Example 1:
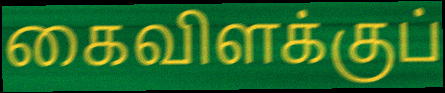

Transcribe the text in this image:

கைவிளக்குப்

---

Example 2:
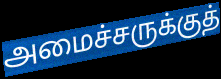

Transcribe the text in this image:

அமைச்சருக்குத்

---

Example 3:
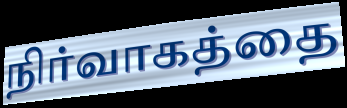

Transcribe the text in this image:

நிர்வாகத்தை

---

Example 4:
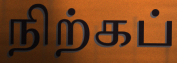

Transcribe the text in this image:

நிற்கப்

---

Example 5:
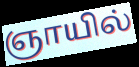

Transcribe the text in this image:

ஞாயில்